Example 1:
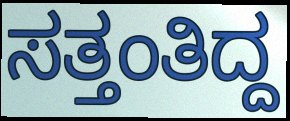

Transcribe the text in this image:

ಸತ್ತಂತಿದ್ದ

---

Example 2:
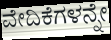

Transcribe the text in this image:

ವೇದಿಕೆಗಳನ್ನೇ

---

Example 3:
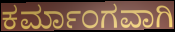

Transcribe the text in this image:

ಕರ್ಮಾಂಗವಾಗಿ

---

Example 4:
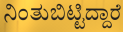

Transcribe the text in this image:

ನಿಂತುಬಿಟ್ಟಿದ್ದಾರೆ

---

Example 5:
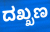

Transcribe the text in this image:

ದಖ್ಖಣ